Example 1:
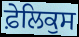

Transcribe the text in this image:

ਫ਼ੇਲਿਕੁਸ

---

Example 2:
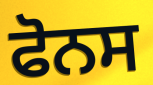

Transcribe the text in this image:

ਫੋਨਸ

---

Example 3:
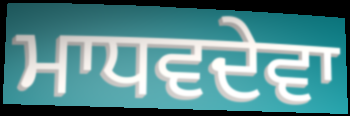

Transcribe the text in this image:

ਮਾਧਵਦੇਵਾ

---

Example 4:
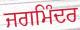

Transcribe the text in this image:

ਜਗਮਿੰਦਰ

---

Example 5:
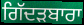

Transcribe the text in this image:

ਗਿੱਦੜਬਾਰਾ